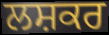
ਲਸ਼ਕਰ